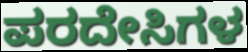
ಪರದೇಸಿಗಳ